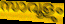
സാവൂളും